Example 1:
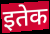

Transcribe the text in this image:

इतेक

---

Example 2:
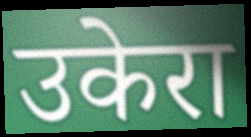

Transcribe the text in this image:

उकेरा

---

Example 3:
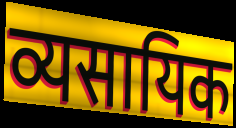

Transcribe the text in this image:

व्यसायिक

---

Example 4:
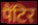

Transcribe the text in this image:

पैंटिर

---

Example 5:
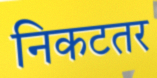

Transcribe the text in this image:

निकटतर